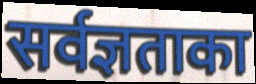
सर्वज्ञताका